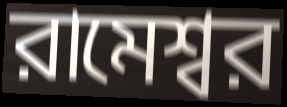
রামেশ্বর